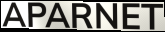
APARNET